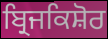
ਬ੍ਰਿਜਕਿਸ਼ੋਰ